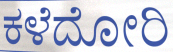
ಕಳೆದೋರಿ